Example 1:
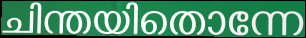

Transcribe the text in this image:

ചിന്തയിതൊന്നേ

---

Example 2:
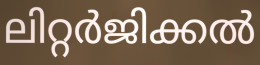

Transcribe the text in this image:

ലിറ്റർജിക്കൽ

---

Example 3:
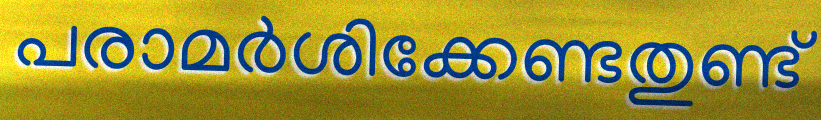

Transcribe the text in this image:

പരാമർശിക്കേണ്ടതുണ്ട്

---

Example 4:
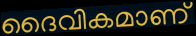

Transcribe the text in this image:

ദൈവികമാണ്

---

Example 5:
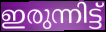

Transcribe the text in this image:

ഇരുന്നിട്ട്